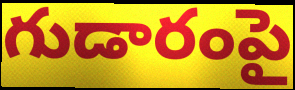
గుడారంపై